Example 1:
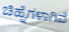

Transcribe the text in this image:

ಚಿಹ್ನೆಗಳಾಗಿವೆ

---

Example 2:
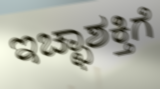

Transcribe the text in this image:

ಇಚ್ಛಾಶಕ್ತಿಗೆ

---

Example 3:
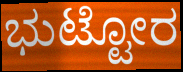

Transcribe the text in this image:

ಭುಟ್ಟೋರ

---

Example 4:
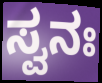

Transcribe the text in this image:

ಸ್ವನಃ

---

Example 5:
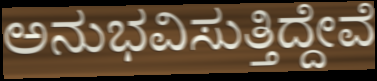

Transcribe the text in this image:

ಅನುಭವಿಸುತ್ತಿದ್ದೇವೆ